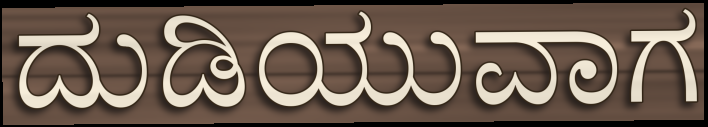
ದುಡಿಯುವಾಗ